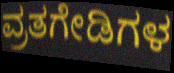
ವ್ರತಗೇಡಿಗಳ